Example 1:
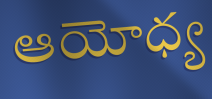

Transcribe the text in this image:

ఆయోధ్య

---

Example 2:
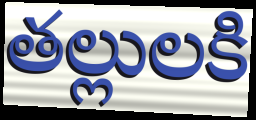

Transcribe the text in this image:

తల్లులకి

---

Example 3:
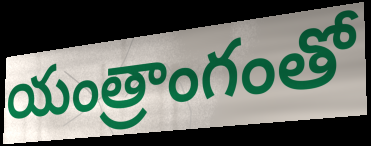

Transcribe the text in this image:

యంత్రాంగంతో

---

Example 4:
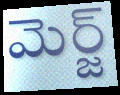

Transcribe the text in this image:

మెర్జ్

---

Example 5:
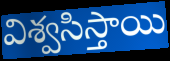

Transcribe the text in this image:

విశ్వసిస్తాయి